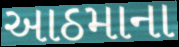
આઠમાના